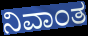
ನಿವಾಂತ